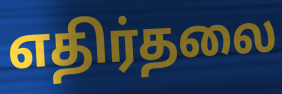
எதிர்தலை